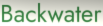
Backwater